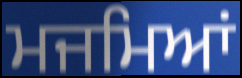
ਮਜਮਿਆਂ